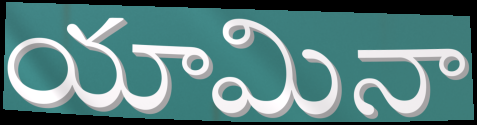
యామినా